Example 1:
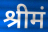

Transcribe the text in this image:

श्रीमं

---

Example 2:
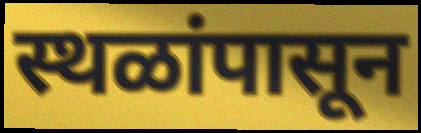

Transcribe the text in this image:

स्थळांपासून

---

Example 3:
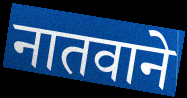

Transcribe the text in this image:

नातवाने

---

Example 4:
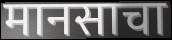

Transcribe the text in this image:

मानसाचा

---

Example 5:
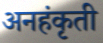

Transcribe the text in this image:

अनहंकृती